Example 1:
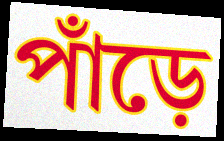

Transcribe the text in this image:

পাঁড়ে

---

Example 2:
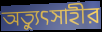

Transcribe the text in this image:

অত্যুৎসাহীর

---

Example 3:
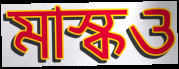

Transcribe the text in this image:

মাস্কও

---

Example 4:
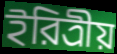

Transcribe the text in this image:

ইরিত্রীয়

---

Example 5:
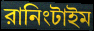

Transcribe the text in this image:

রানিংটাইম